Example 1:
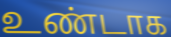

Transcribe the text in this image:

உண்டாக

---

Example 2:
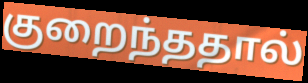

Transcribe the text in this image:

குறைந்ததால்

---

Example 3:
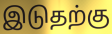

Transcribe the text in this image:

இடுதற்கு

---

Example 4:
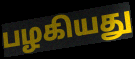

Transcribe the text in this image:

பழகியது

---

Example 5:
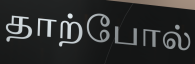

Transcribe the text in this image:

தாற்போல்